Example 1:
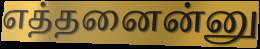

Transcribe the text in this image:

எத்தனைன்னு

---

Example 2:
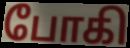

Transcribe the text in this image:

போகி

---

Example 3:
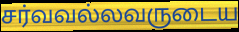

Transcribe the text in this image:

சர்வவல்லவருடைய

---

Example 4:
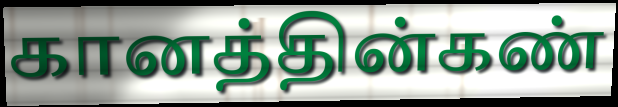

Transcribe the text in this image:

கானத்தின்கண்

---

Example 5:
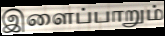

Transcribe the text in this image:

இளைப்பாறும்